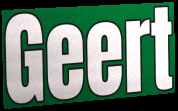
Geert